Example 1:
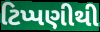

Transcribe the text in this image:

ટિપ્પણીથી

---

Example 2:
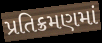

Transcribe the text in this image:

પ્રતિક્રમણમાં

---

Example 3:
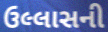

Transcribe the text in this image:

ઉલ્લાસની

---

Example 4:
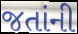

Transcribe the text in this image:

જતાંની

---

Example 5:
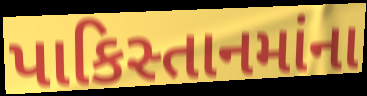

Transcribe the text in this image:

પાકિસ્તાનમાંના